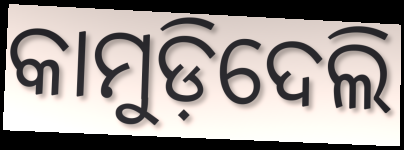
କାମୁଡ଼ିଦେଲି